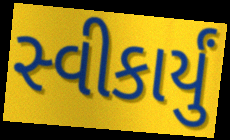
સ્વીકાર્યું